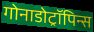
गोनाडोट्रॉपिन्स